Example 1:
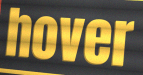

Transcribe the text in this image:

hover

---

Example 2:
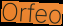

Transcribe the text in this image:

Orfeo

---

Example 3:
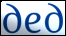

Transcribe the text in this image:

ded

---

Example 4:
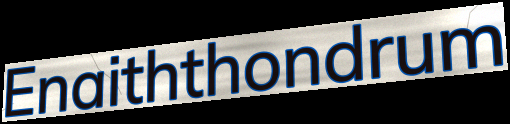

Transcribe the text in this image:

Enaiththondrum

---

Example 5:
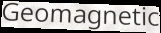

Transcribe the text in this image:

Geomagnetic